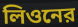
লিওনের